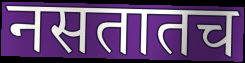
नसतातच